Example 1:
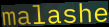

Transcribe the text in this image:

malashe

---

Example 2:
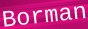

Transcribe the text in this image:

Borman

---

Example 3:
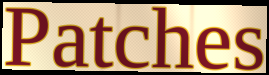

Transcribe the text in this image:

Patches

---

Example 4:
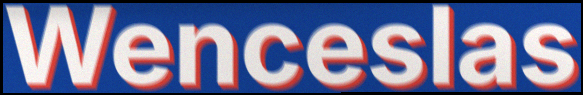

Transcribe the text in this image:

Wenceslas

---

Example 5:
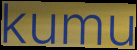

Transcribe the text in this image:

kumu